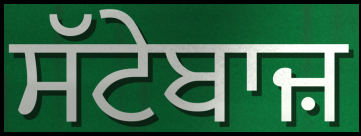
ਸੱਟੇਬਾਜ਼